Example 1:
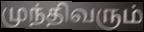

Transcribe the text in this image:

முந்திவரும்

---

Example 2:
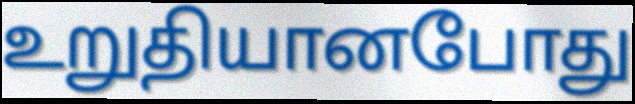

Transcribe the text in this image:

உறுதியானபோது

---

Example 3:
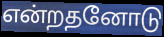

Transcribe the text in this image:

என்றதனோடு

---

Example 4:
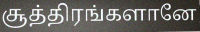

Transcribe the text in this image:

சூத்திரங்களானே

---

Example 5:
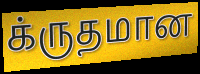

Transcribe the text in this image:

க்ருதமான